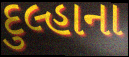
દુલ્હાના